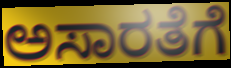
ಅಸಾರತೆಗೆ